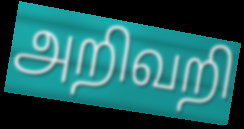
அறிவறி